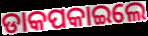
ଡାକପକାଇଲେ